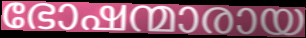
ഭോഷന്മാരായ